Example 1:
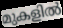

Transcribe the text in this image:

മുകളിൽ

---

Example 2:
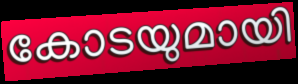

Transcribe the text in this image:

കോടയുമായി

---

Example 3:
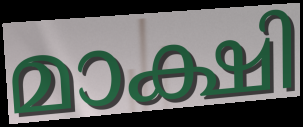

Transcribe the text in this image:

മാക്ഷി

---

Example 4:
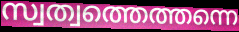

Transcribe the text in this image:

സ്വത്വത്തെത്തന്നെ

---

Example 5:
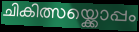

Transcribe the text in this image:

ചികിത്സയ്ക്കൊപ്പം